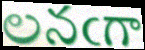
లనఁగా